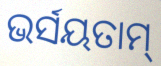
ଭର୍ସୟତାମ୍